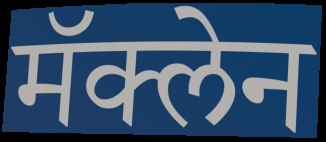
मॅक्लेन